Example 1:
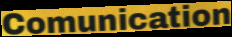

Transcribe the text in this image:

Comunication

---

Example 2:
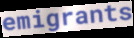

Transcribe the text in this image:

emigrants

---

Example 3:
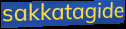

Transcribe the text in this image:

sakkatagide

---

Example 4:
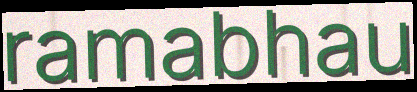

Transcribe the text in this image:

ramabhau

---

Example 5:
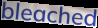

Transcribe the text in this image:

bleached